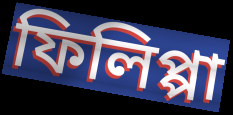
ফিলিপ্পা